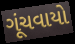
ગૂંચવાયો